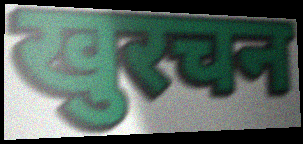
खुरचन